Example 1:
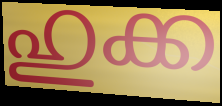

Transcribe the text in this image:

ഹുക്ക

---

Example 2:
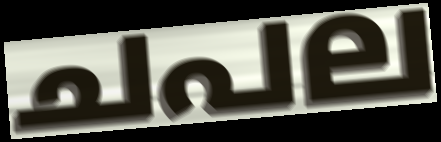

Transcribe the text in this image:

ചപല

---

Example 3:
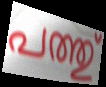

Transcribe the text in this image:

പത്തു്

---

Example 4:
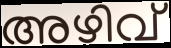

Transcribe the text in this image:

അഴിവ്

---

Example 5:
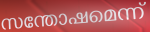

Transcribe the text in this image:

സന്തോഷമെന്ന്